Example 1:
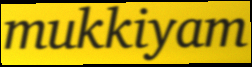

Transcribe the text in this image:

mukkiyam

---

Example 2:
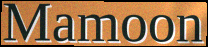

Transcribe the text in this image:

Mamoon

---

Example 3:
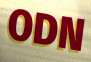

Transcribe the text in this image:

ODN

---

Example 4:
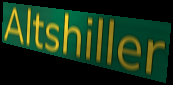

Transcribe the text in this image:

Altshiller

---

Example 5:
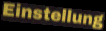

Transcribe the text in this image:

Einstellung